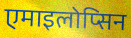
एमाइलोप्सिन